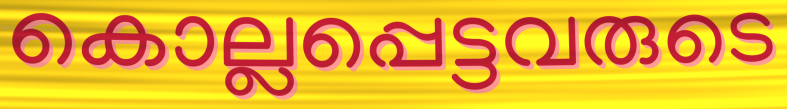
കൊല്ലപ്പെട്ടവരുടെ